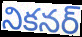
నికనర్